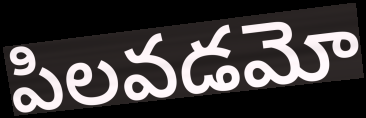
పిలవడమో